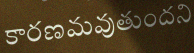
కారణమవుతుందని